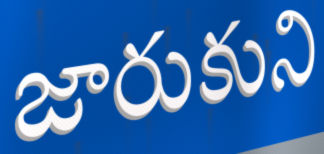
జారుకుని